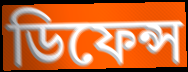
ডিফেন্স